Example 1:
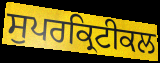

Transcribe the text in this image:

ਸੁਪਰਕ੍ਰਿਟੀਕਲ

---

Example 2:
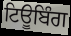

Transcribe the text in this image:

ਟਿਊਬਿੰਗ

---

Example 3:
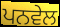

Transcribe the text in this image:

ਪਨਵੇਲ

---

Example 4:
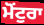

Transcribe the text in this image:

ਮੋਂਟੁਰਾ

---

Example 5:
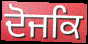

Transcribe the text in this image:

ਦੋਜਕਿ